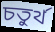
চতুৰ্থ